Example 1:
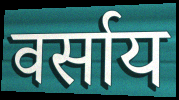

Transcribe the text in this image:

वर्साय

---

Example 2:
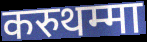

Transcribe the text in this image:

करुथम्मा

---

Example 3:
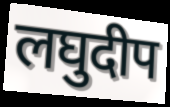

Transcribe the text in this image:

लघुदीप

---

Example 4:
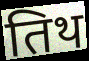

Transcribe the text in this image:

तिथ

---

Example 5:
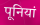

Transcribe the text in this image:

पूनियां